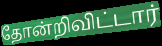
தோன்றிவிட்டார்